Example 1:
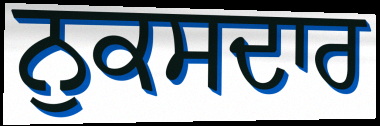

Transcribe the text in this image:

ਨੁਕਸਦਾਰ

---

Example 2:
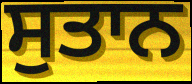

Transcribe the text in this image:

ਸੁਤਾਨ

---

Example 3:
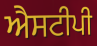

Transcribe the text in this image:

ਐਸਟੀਪੀ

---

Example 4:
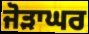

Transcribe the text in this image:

ਜੋੜਾਘਰ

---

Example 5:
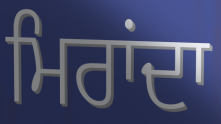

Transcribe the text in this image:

ਮਿਰਾਂਦਾ